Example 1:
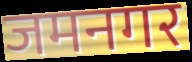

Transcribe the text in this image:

जमनगर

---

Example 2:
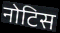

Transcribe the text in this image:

नोटिस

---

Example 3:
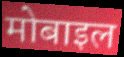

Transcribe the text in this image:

मोबाइल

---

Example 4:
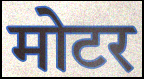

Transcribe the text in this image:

मोटर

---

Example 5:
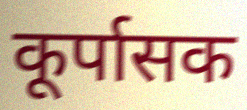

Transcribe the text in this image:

कूर्पासक